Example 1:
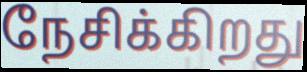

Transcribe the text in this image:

நேசிக்கிறது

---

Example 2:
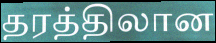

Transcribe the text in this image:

தரத்திலான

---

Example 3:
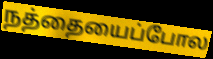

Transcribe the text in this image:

நத்தையைப்போல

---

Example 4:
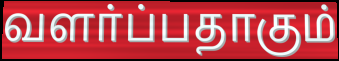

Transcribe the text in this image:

வளர்ப்பதாகும்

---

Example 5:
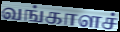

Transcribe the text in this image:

வங்காளச்